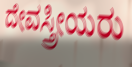
ದೇವಸ್ತ್ರೀಯರು